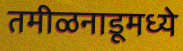
तमीळनाडूमध्ये